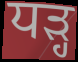
ਧੜ੍ਹ